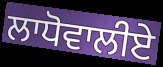
ਲਾਧੋਵਾਲੀਏ